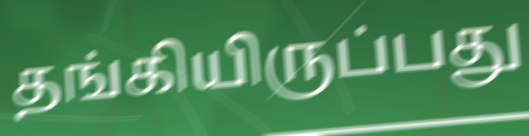
தங்கியிருப்பது